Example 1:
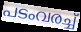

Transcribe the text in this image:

പടംവരച്ച്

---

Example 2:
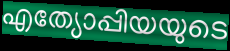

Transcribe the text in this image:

എത്യോപ്പിയയുടെ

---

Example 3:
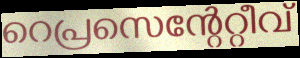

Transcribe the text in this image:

റെപ്രസെന്റേറ്റീവ്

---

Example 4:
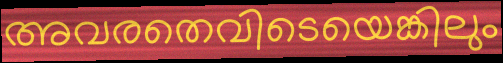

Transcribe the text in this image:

അവരതെവിടെയെങ്കിലും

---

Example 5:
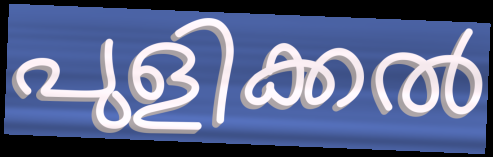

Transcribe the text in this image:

പുളിക്കൽ